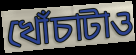
খোঁচাটাও